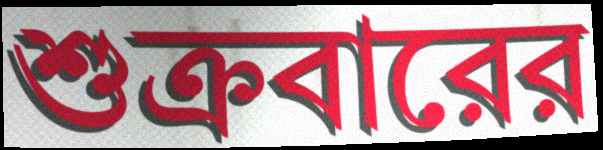
শুক্রবারের